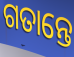
ଗତାନ୍ତେ